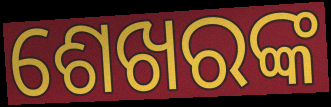
ଶେଖରଙ୍କ